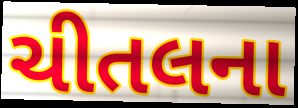
ચીતલના